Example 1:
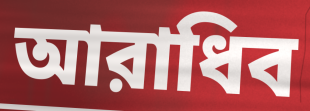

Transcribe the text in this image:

আরাধিব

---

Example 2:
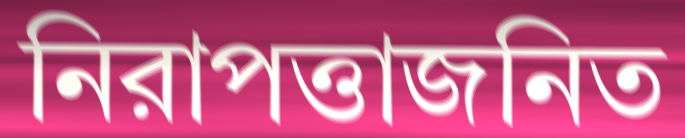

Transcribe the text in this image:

নিরাপত্তাজনিত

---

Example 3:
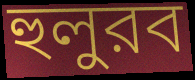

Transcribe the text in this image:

হুলুরব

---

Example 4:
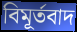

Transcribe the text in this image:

বিমূর্তবাদ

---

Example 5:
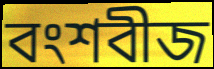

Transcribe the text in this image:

বংশবীজ